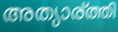
അത്യാര്ത്തി